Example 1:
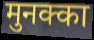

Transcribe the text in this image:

मुनक्का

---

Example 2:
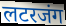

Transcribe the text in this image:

लटरजंग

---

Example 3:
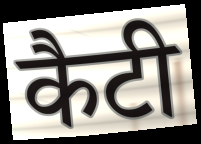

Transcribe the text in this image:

कैटी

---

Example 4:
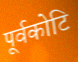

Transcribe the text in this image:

पूर्वकोटि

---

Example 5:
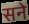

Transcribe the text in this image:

सने